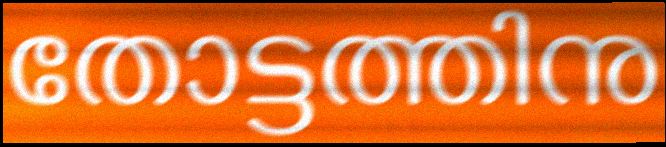
തോട്ടത്തിനു